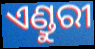
ଏଣ୍ଡୁରୀ